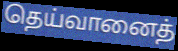
தெய்வானைத்